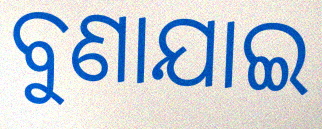
ବୁଣାଯାଇ